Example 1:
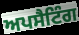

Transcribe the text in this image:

ਅਪਸੈਟਿੰਗ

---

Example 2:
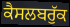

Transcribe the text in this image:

ਕੈਸਲਬਰੁੱਕ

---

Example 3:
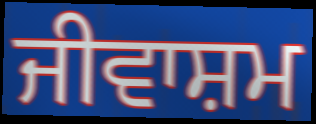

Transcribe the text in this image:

ਜੀਵਾਸ਼ਮ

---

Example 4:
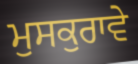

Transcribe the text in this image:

ਮੁਸਕੁਰਾਵੇ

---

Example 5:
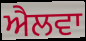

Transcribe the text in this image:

ਐਲਵਾ